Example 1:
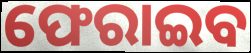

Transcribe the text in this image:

ଫେରାଇବ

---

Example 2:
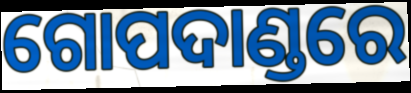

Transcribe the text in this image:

ଗୋପଦାଣ୍ଡରେ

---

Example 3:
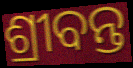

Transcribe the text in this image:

ଶ୍ରୀବନ୍ତ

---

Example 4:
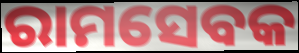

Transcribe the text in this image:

ରାମସେବକ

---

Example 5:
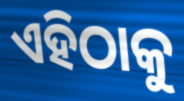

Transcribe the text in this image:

ଏହିଠାକୁ